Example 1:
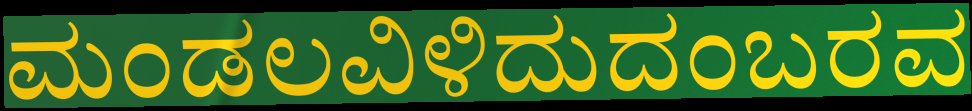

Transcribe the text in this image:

ಮಂಡಲವಿಳಿದುದಂಬರವ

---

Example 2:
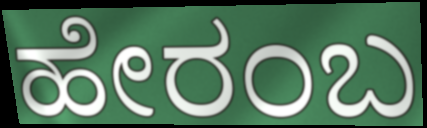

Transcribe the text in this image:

ಹೇರಂಬ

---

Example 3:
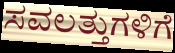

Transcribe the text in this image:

ಸವಲತ್ತುಗಳಿಗೆ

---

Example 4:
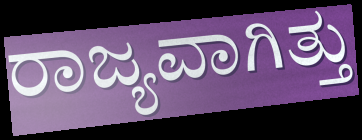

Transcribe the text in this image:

ರಾಜ್ಯವಾಗಿತ್ತು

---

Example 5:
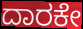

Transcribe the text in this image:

ದಾರಕೇ